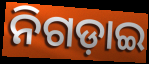
ନିଗଡ଼ାଇ